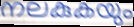
നലകുകയും